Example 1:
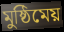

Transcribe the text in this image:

মুষ্ঠিমেয়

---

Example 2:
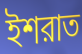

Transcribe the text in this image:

ইশরাত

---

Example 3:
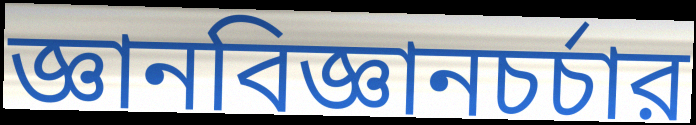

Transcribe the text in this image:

জ্ঞানবিজ্ঞানচর্চার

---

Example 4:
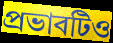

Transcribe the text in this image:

প্রভাবটিও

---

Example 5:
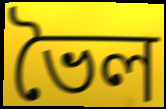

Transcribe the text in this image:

ভৈল